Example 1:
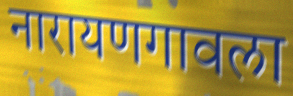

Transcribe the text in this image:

नारायणगावला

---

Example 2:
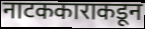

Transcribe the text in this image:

नाटककाराकडून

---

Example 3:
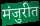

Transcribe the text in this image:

मंजुरीत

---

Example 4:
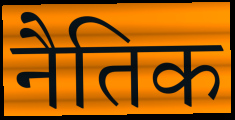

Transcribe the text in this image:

नैतिक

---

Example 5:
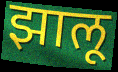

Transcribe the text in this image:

झालू